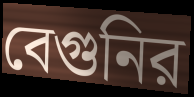
বেগুনির